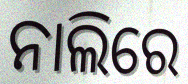
ନାଲିରେ